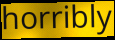
horribly